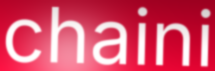
chaini